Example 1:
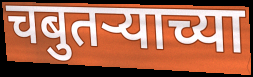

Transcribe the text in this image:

चबुतर्‍याच्या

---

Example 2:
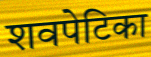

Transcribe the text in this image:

शवपेटिका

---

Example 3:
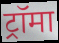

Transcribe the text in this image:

ट्रॉमा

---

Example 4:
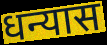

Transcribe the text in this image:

धन्यास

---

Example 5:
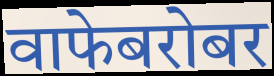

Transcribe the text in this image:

वाफेबरोबर